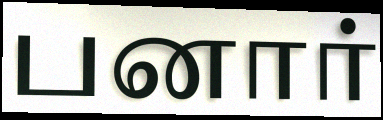
பனார்